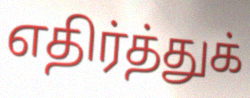
எதிர்த்துக்